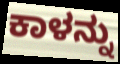
ಕಾಳನ್ನು